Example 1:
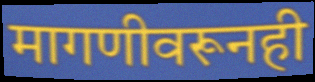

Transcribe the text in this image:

मागणीवरूनही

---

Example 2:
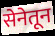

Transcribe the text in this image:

सेनेतून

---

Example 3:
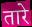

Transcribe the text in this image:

तारे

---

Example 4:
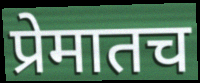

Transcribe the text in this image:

प्रेमातच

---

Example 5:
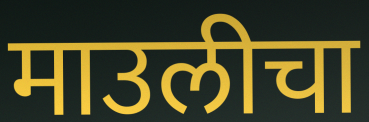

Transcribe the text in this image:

माउलीचा